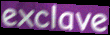
exclave